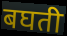
बघती